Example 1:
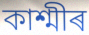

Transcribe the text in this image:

কাশ্মীৰ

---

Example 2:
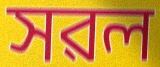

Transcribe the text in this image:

সৱল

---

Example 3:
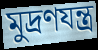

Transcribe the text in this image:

মুদ্ৰণযন্ত্ৰ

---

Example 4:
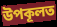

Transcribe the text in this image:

উপকূলত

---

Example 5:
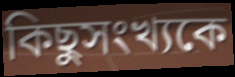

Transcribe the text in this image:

কিছুসংখ্যকে